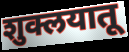
शुक्लयातू